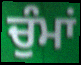
ਚੁੰਮਾਂ